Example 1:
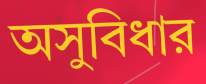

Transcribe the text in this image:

অসুবিধার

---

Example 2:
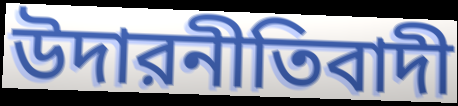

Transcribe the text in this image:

উদারনীতিবাদী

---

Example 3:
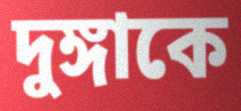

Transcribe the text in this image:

দুঙ্গাকে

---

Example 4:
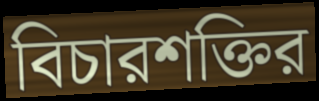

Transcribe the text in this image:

বিচারশক্তির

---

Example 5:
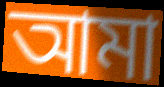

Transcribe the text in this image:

আমা